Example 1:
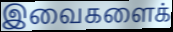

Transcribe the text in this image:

இவைகளைக்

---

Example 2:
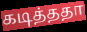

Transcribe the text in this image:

கடித்ததா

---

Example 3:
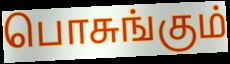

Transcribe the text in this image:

பொசுங்கும்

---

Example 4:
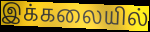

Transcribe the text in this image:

இக்கலையில்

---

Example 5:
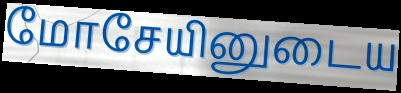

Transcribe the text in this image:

மோசேயினுடைய